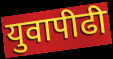
युवापीढी